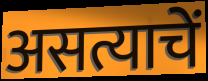
असत्याचें